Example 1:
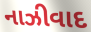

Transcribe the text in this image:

નાઝીવાદ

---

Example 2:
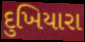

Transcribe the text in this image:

દુખિયારા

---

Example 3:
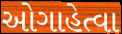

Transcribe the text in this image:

ઓગાહેત્વા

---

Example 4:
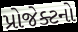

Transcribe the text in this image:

પ્રોજેક્ટનો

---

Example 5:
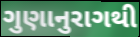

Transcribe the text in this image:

ગુણાનુરાગથી